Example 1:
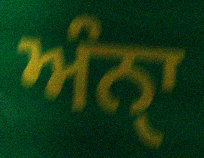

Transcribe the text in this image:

ਅੰਨੑਾ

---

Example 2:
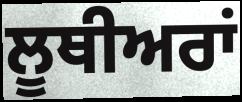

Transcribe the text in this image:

ਲੂਥੀਅਰਾਂ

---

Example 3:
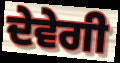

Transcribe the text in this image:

ਦੇਵੇਗੀ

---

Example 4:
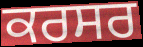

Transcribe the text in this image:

ਕਰਸਰ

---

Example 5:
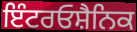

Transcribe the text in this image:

ਇੰਟਰਓਸ਼ੈਨਿਕ